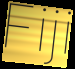
Fiji